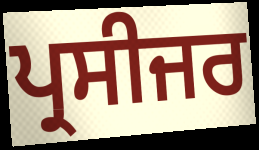
ਪ੍ਰਸੀਜਰ